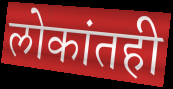
लोकांतही